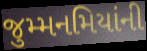
જુમ્મનમિયાંની